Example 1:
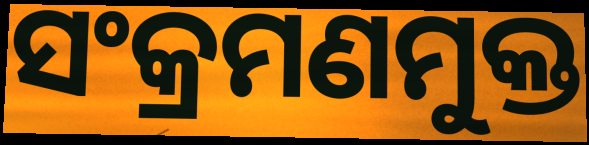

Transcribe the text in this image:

ସଂକ୍ରମଣମୁକ୍ତ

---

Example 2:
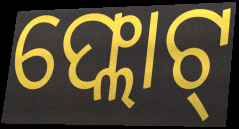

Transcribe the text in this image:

ଫ୍ଲୋଟ୍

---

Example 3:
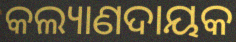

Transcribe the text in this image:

କଲ୍ୟାଣଦାୟକ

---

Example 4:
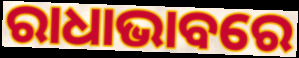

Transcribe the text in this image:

ରାଧାଭାବରେ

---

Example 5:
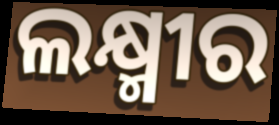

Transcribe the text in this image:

ଲକ୍ଷ୍ମୀର